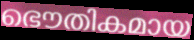
ഭൌതികമായ